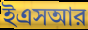
ইএসআর